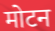
मोटन